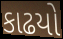
કાઢયો